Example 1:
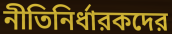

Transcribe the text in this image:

নীতিনির্ধারকদের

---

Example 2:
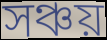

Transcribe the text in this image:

সঞ্চয়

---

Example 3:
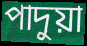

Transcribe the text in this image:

পাদুয়া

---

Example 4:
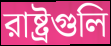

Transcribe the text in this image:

রাষ্ট্রগুলি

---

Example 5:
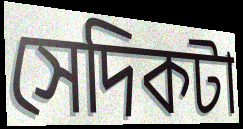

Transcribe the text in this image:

সেদিকটা